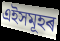
এইসমূহৰ